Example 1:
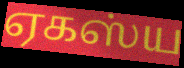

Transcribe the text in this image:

ஏகஸ்ய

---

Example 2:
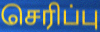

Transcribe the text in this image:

செரிப்பு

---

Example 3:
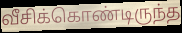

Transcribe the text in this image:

வீசிக்கொண்டிருந்த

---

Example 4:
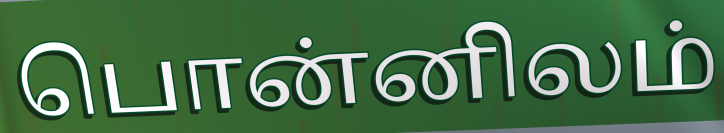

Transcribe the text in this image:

பொன்னிலம்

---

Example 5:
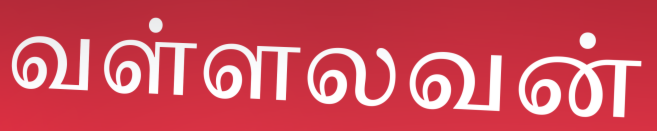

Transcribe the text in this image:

வள்ளலவன்